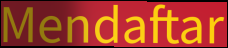
Mendaftar